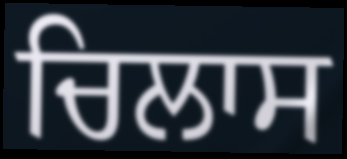
ਚਿਲਾਸ